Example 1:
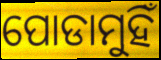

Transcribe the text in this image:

ପୋଡାମୁହିଁ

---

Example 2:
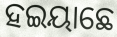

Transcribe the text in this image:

ହଇୟାଛେ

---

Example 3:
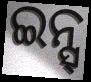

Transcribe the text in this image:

ଇନ୍ସ୍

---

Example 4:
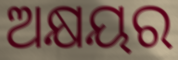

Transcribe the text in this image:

ଅକ୍ଷୟର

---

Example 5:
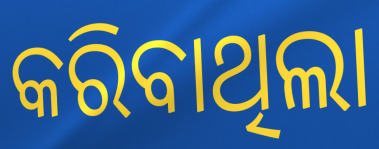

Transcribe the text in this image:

କରିବାଥିଲା